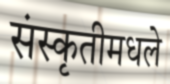
संस्कृतीमधले